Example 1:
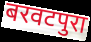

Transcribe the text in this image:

बरवटपुरा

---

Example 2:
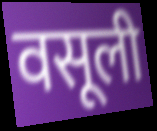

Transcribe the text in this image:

वसूली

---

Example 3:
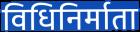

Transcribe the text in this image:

विधिनिर्माता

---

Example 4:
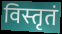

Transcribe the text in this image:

विस्तृतं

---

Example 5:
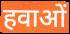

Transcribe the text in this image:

हवाओं